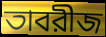
তাবরীজ